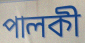
পালকী